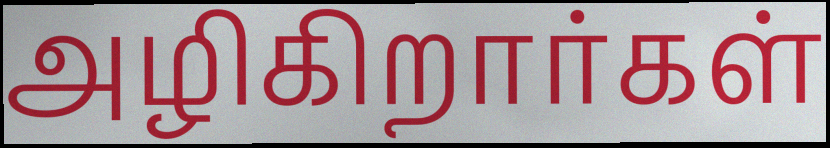
அழிகிறார்கள்